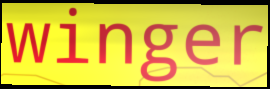
winger